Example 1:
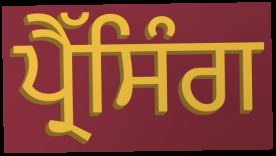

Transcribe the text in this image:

ਪ੍ਰੈੱਸਿੰਗ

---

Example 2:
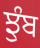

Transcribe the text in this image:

ਝੁੰਬ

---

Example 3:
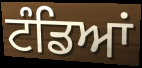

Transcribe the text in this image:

ਟੰਡਿਆਂ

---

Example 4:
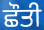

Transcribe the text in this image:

ਛੌਤੀ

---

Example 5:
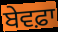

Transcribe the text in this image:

ਬੇਵਫ਼ਾ